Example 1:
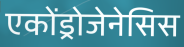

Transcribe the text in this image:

एकोंड्रोजेनेसिस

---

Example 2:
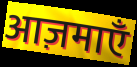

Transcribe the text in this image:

आज़माएँ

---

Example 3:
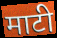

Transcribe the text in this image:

माटी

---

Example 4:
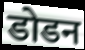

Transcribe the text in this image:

डोडन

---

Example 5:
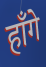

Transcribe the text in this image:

हाँगे